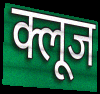
क्लूज